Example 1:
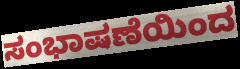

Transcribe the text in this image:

ಸಂಭಾಷಣೆಯಿಂದ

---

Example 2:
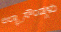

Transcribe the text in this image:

ಅಲ್ಟ್ರಾಸೌಂಡ್ಗಳು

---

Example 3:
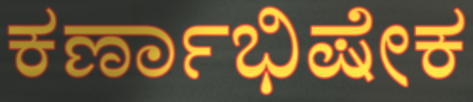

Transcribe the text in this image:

ಕರ್ಣಾಭಿಷೇಕ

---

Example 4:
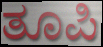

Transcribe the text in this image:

ತೂಪಿ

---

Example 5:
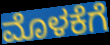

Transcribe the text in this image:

ಮೊಳಕೆಗೆ